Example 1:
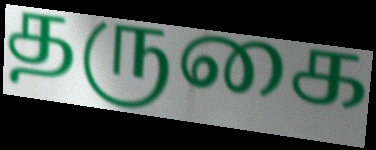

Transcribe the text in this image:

தருகை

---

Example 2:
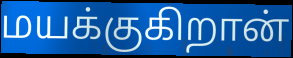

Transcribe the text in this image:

மயக்குகிறான்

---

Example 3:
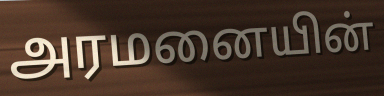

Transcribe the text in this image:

அரமனையின்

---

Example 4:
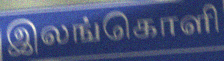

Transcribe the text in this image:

இலங்கொளி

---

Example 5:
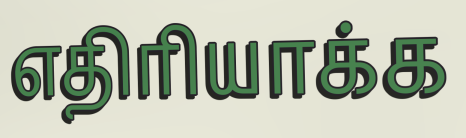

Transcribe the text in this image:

எதிரியாக்க